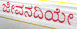
ಜೀವನದಿಯೇ